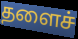
தளைச்